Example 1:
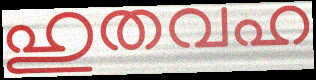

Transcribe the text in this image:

ഹുതവഹ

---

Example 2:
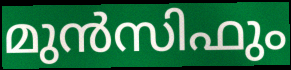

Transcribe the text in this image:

മുൻസിഫും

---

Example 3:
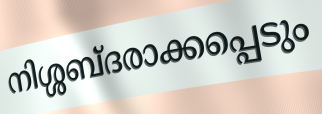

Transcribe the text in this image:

നിശ്ശബ്ദരാക്കപ്പെടും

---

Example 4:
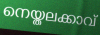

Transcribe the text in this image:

നെയ്തലക്കാവ്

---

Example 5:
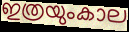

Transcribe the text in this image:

ഇത്രയുംകാല